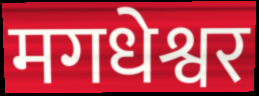
मगधेश्वर